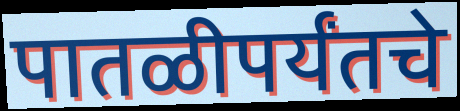
पातळीपर्यंतचे